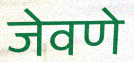
जेवणे